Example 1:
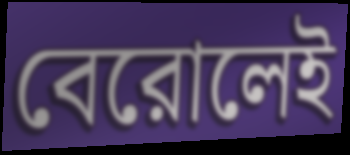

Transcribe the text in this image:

বেরোলেই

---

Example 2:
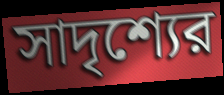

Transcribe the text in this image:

সাদৃশ্যের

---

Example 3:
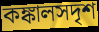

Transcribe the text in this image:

কঙ্কালসদৃশ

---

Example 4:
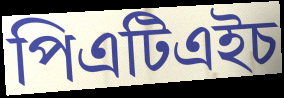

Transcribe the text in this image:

পিএটিএইচ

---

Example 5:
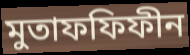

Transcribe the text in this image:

মুতাফফিফীন